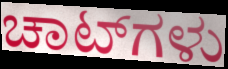
ಚಾಟ್‌ಗಳು